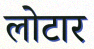
लोटार